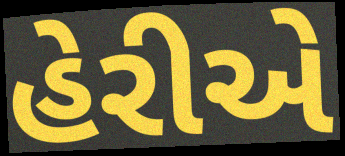
હેરીએ